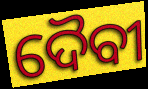
ଦୈବୀ